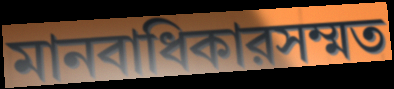
মানবাধিকারসম্মত